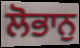
ਲੋਭਾਨੁ